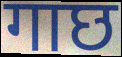
गाछ